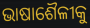
ଭାଷାଶୈଳୀକୁ